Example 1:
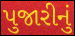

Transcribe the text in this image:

પુજારીનું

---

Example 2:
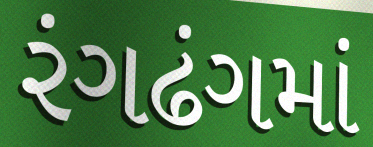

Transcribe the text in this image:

રંગઢંગમાં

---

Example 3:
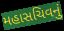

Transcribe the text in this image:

મહાસચિવનું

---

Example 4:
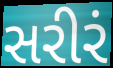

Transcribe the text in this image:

સરીરં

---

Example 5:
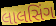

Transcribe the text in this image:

લાલસિંગ